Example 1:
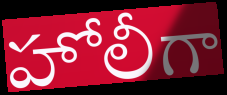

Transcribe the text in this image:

హోలీగా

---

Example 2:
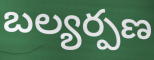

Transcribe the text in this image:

బల్యర్పణ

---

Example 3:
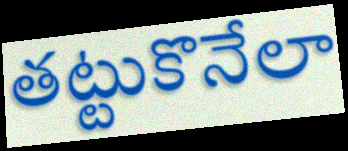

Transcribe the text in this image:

తట్టుకొనేలా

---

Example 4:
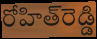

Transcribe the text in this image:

రోహిత్‌రెడ్డి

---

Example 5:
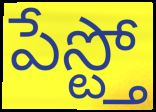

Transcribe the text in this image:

పేస్ట్తో